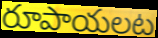
రూపాయలట